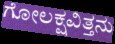
ಗೋಲಕ್ಷವಿತ್ತನು